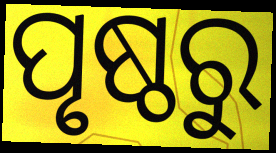
ପୃଷ୍ଠରୁ